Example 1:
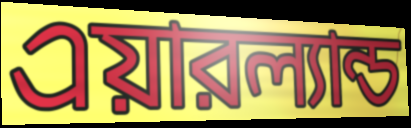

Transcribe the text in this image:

এয়ারল্যান্ড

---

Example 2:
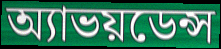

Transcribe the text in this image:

অ্যাভয়ডেন্স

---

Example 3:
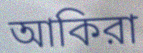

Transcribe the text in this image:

আকিরা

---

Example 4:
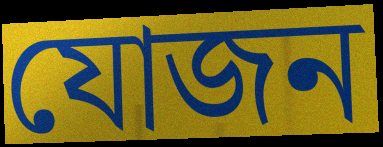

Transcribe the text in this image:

যোজন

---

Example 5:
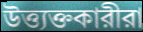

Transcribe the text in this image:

উত্ত্যক্তকারীরা